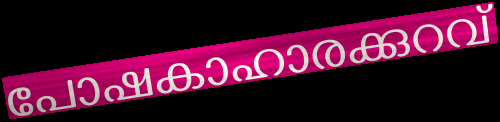
പോഷകാഹാരക്കുറവ്